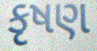
કૃષણ